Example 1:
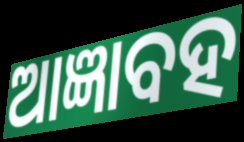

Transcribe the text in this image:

ଆଜ୍ଞାବହ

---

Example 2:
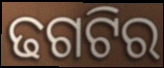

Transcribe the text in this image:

ଢଗଟିର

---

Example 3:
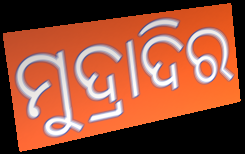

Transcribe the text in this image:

ମୁଦ୍ରାଦିର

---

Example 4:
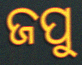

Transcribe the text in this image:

ଜପୁ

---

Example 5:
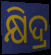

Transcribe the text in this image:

କ୍ଷିଦ୍ର